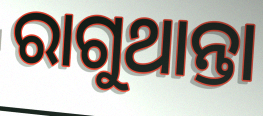
ରାଗୁଥାନ୍ତା